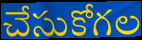
చేసుకోగల